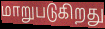
மாறுபடுகிறது